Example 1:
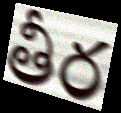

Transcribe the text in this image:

తీర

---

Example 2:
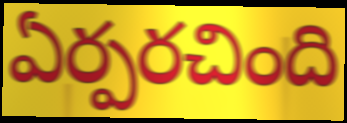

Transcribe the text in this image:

ఏర్పరచింది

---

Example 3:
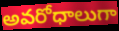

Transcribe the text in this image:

అవరోధాలుగా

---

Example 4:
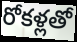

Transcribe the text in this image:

రోకళ్లతో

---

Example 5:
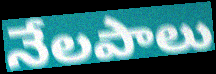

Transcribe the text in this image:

నేలపాలు